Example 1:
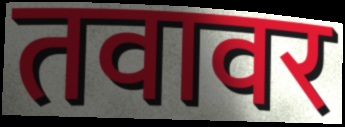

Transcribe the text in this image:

तवावर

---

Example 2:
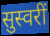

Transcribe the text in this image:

सुस्वरीं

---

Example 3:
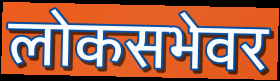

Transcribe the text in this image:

लोकसभेवर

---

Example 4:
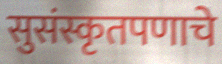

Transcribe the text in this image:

सुसंस्कृतपणाचे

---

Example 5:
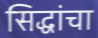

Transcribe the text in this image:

सिद्धांचा